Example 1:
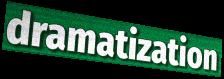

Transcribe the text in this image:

dramatization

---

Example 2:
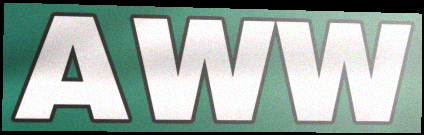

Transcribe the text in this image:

AWW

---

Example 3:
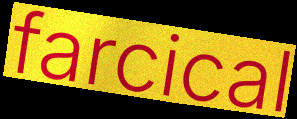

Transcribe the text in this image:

farcical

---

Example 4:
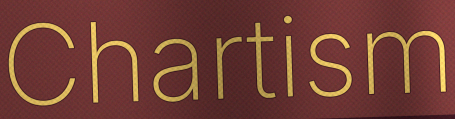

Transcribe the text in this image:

Chartism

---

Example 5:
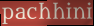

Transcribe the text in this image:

pachhini